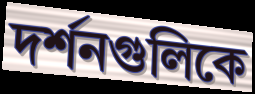
দর্শনগুলিকে